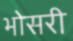
भोसरी